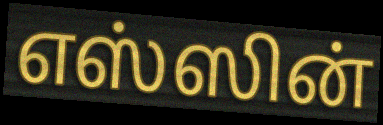
எஸ்ஸின்